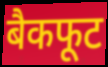
बैकफूट